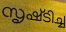
സൃഷ്‌ടിച്ച